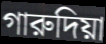
গারুদিয়া